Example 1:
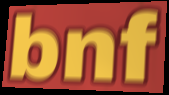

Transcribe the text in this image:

bnf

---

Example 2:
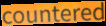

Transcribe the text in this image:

countered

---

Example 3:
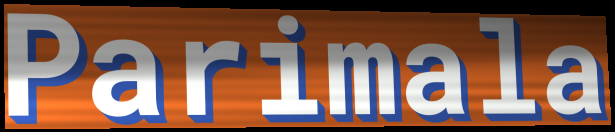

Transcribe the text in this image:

Parimala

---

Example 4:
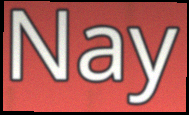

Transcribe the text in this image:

Nay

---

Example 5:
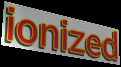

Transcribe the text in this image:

ionized